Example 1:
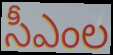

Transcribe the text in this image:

సీఎంల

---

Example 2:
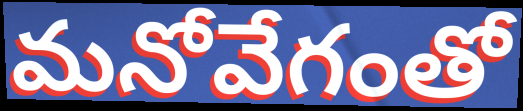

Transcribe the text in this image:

మనోవేగంతో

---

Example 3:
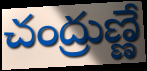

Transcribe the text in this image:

చంద్రుణ్ణే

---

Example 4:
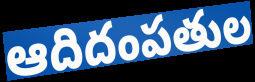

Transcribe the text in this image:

ఆదిదంపతుల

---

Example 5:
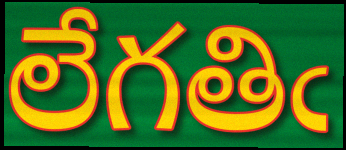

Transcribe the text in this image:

లేగతిఁ